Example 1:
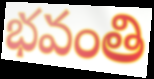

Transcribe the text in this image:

భవంతి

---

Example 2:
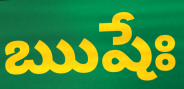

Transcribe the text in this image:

ఋషేః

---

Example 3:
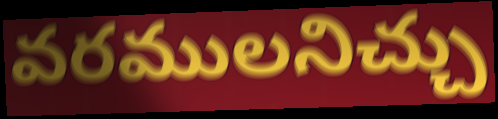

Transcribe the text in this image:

వరములనిచ్చు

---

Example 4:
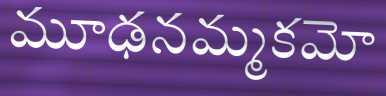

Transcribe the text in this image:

మూఢనమ్మకమో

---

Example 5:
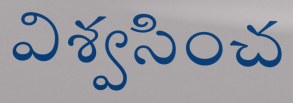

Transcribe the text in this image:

విశ్వసించ